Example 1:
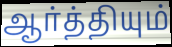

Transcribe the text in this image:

ஆர்த்தியும்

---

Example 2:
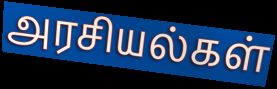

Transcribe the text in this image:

அரசியல்கள்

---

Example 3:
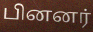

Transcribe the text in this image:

பினனர்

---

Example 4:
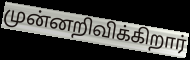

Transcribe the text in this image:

முன்னறிவிக்கிறார்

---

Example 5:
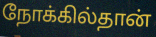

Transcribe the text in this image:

நோக்கில்தான்